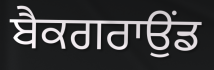
ਬੈਕਗਰਾਉਂਡ